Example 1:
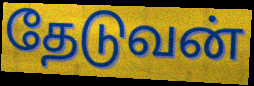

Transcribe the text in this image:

தேடுவன்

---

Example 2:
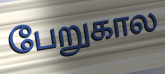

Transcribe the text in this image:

பேறுகால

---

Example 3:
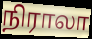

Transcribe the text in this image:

நிராலா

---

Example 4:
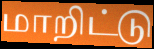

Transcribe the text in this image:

மாறிட்டு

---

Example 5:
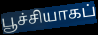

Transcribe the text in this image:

பூச்சியாகப்